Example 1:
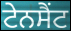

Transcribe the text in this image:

ਟੇਨਸੈਂਟ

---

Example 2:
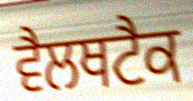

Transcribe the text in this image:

ਵੈਲਥਟੈਕ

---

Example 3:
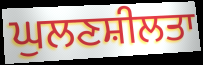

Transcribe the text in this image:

ਘੁਲਣਸ਼ੀਲਤਾ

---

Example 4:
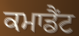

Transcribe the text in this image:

ਕਮਾਡੈਂਟ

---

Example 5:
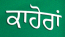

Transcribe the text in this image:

ਕਾਹੋਰਾਂ